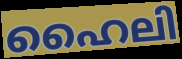
ഹൈലി